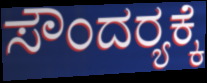
ಸೌಂದರ‍್ಯಕ್ಕೆ